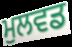
ਮੁਲਵਡ